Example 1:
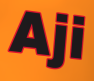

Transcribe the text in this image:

Aji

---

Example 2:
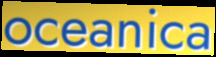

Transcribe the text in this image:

oceanica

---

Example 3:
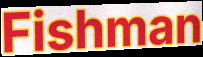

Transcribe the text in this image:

Fishman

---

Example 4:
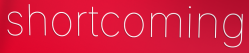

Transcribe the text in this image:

shortcoming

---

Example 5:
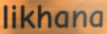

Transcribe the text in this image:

likhana